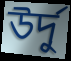
উর্দু